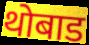
थोबाड